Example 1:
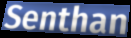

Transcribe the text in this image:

Senthan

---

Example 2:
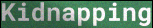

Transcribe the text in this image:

Kidnapping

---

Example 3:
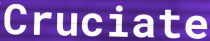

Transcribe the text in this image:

Cruciate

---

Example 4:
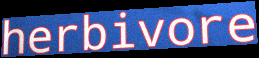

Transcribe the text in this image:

herbivore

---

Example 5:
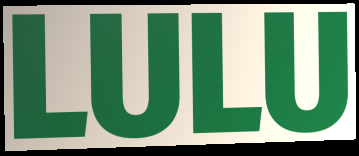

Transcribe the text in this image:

LULU